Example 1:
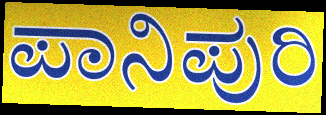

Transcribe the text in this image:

ಪಾನಿಪುರಿ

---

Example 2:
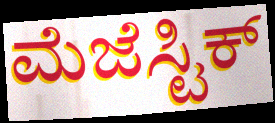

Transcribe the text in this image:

ಮೆಜೆಸ್ಟಿಕ್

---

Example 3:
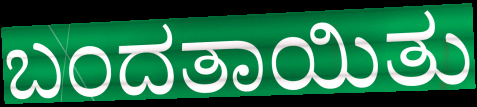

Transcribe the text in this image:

ಬಂದತಾಯಿತು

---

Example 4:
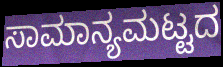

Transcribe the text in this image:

ಸಾಮಾನ್ಯಮಟ್ಟದ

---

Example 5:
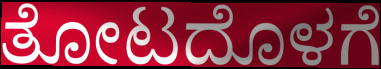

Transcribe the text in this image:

ತೋಟದೊಳಗೆ